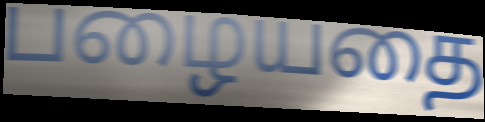
பழையதை